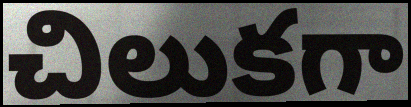
చిలుకగా